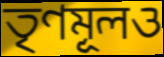
তৃণমূলও